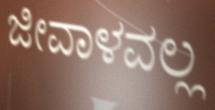
ಜೀವಾಳವಲ್ಲ